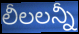
లీలలన్నీ